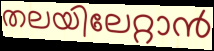
തലയിലേറ്റാൻ